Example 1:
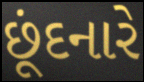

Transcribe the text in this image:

છૂંદનારે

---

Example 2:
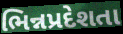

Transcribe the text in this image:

ભિન્નપ્રદેશતા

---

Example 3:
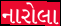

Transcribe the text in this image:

નારોલા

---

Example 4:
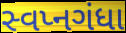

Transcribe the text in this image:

સ્વપ્નગંધા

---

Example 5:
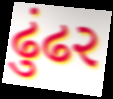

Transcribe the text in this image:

ઢુંઢર